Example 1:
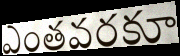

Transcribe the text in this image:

ఎంతవరకూ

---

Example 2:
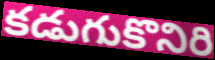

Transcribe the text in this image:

కడుగుకొనిరి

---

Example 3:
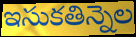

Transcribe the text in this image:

ఇసుకతిన్నెల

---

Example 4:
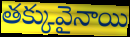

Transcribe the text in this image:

తక్కువైనాయి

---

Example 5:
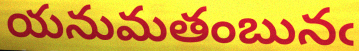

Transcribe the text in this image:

యనుమతంబునఁ